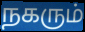
நகரும்